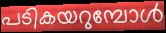
പടികയറുമ്പോൾ